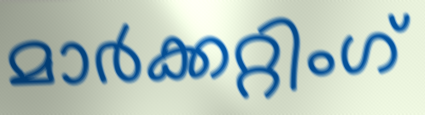
മാർക്കറ്റിംഗ്